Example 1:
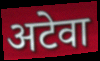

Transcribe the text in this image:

अटेवा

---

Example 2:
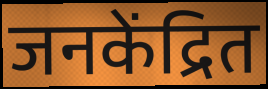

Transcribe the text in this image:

जनकेंद्रित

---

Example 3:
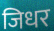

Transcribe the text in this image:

जिधर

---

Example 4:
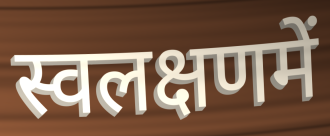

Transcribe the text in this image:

स्वलक्षणमें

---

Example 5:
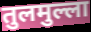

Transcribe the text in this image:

तुलमुल्ला